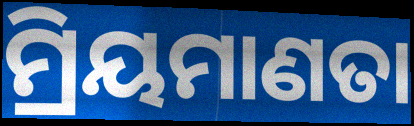
ମ୍ରିୟମାଣତା